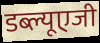
डब्ल्यूएजी